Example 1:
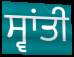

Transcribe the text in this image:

ਸ੍ਵਾਂਤੀ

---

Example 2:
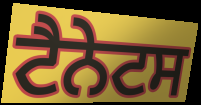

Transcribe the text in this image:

ਟੈਨੇਟਸ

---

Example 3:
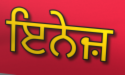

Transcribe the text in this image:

ਇਨੇਜ਼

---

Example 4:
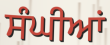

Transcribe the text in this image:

ਸੰਘੀਆਂ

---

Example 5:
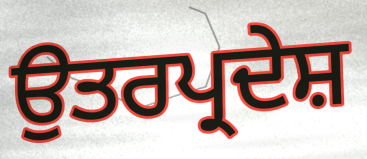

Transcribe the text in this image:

ਉਤਰਪ੍ਰਦੇਸ਼